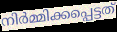
നിർമ്മിക്കപ്പെട്ടത്